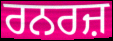
ਰਨਰਜ਼